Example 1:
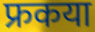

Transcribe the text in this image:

फ्रकया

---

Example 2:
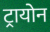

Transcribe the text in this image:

ट्रायोन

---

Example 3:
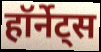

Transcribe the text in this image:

हॉर्नेट्स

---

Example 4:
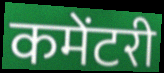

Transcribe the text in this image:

कमेंटरी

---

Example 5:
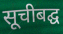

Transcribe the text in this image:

सूचीबद्घ